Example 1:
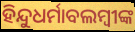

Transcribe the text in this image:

ହିନ୍ଦୁଧର୍ମାବଲମ୍ବୀଙ୍କ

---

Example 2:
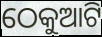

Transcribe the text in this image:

ଠେକୁଆଟି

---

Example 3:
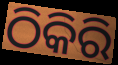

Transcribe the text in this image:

ଠିକିରି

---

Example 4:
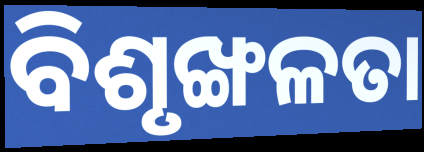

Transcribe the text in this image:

ବିଶୃଙ୍ଖଳତା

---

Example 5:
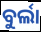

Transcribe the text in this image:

ବୁର୍ଲା